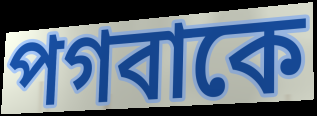
পগবাকে